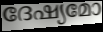
ദേഷ്യമോ